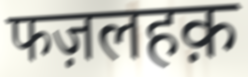
फज़लहक़